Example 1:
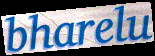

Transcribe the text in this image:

bharelu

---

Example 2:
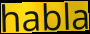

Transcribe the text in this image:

habla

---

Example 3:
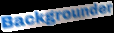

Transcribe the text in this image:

Backgrounder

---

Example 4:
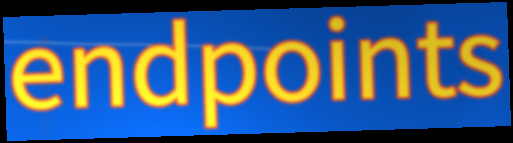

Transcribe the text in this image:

endpoints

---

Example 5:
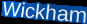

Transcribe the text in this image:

Wickham